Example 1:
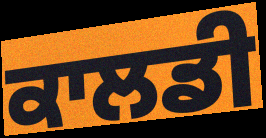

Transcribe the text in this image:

ਕਾਲਡੀ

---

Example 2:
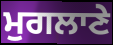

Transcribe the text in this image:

ਮੁਗਲਾਣੇ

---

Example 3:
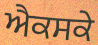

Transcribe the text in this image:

ਐਕਸਕੇ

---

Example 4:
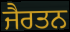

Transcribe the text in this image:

ਜੈਰਤਨ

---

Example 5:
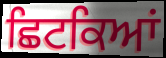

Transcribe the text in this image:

ਛਿਟਕਿਆਂ